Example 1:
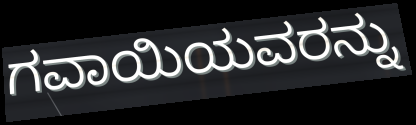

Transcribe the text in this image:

ಗವಾಯಿಯವರನ್ನು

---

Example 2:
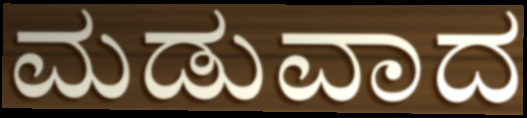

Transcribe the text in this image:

ಮಡುವಾದ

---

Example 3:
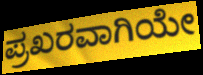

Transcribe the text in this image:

ಪ್ರಖರವಾಗಿಯೇ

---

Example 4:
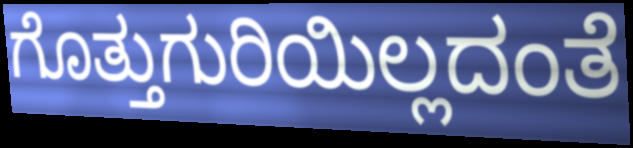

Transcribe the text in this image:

ಗೊತ್ತುಗುರಿಯಿಲ್ಲದಂತೆ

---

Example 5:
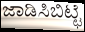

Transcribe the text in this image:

ಜಾಡಿಸಿಬಿಟ್ಟೆ